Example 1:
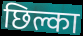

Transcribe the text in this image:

छिल्का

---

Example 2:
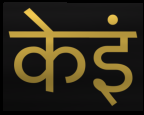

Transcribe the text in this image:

केइं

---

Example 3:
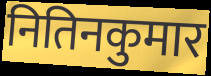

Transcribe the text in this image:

नितिनकुमार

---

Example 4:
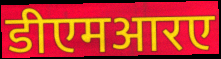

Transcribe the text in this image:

डीएमआरए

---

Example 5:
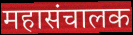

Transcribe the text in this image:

महासंचालक